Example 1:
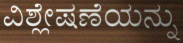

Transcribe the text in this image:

ವಿಶ್ಲೇಷಣೆಯನ್ನು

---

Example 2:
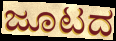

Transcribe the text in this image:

ಜೂಟದ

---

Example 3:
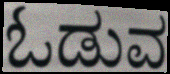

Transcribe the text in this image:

ಓಡುವ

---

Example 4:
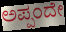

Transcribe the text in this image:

ಅಪ್ಪಂದೇ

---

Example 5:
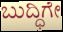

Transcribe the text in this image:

ಬುದ್ಧಿಗೇ